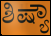
ಶಿಷ್ಯೌ